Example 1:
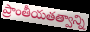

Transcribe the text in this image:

ప్రాంతీయతత్వాన్ని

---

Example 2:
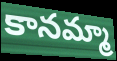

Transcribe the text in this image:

కానమ్మా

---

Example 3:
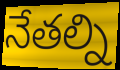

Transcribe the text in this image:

నేతల్ని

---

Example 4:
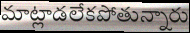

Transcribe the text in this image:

మాట్లాడలేకపోతున్నారు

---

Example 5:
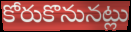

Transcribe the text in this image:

కోరుకొనునట్లు